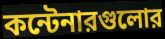
কন্টেনারগুলোর